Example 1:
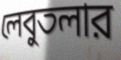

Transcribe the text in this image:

লেবুতলার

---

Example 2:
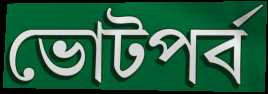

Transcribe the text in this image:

ভোটপর্ব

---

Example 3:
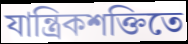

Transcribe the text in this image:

যান্ত্রিকশক্তিতে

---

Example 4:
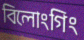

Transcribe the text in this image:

বিলোংগিং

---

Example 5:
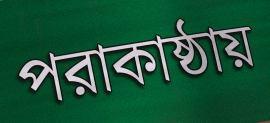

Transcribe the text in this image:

পরাকাষ্ঠায়